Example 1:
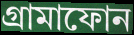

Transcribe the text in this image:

গ্রামাফোন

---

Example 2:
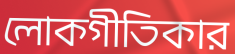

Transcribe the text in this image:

লোকগীতিকার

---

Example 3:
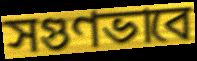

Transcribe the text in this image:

সগুণভাবে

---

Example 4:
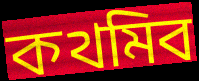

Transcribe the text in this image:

কথমিব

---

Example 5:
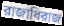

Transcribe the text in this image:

রাজাধিরাজ